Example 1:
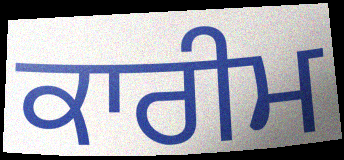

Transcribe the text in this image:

ਕਾਰੀਮ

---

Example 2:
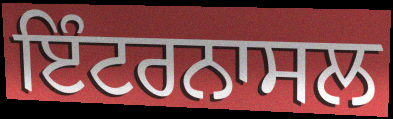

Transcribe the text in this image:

ਇੰਟਰਨਾਸਲ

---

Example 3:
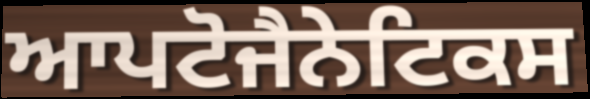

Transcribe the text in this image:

ਆਪਟੋਜੈਨੇਟਿਕਸ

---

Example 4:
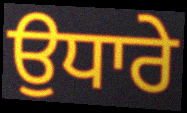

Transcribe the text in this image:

ਉਧਾਰੇ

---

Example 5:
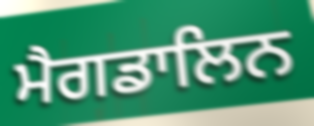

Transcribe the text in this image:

ਮੈਗਡਾਲਿਨ